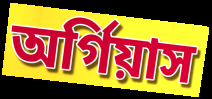
অর্গিয়াস